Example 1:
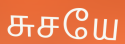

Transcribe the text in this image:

சுசயே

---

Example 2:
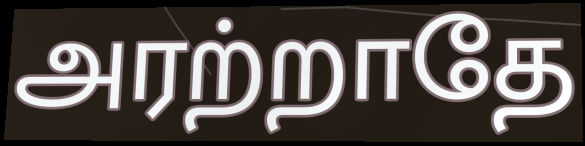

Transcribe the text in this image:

அரற்றாதே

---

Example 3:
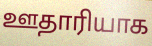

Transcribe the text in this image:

ஊதாரியாக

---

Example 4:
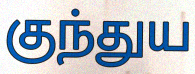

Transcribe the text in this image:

குந்துய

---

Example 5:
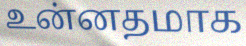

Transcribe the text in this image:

உன்னதமாக